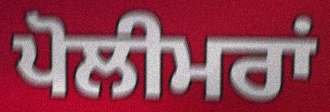
ਪੋਲੀਮਰਾਂ